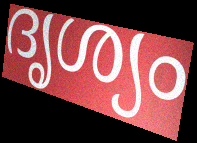
ദൃശ്യം